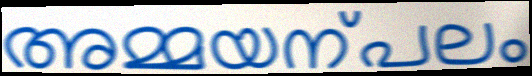
അമ്മയന്പലം